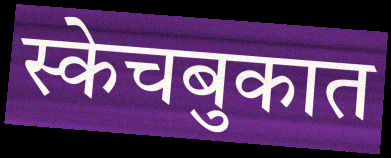
स्केचबुकात